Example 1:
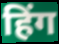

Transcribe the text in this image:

हिंग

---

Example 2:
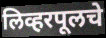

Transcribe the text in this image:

लिव्हरपूलचे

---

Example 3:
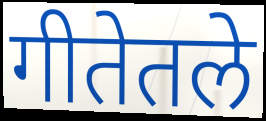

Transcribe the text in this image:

गीतेतले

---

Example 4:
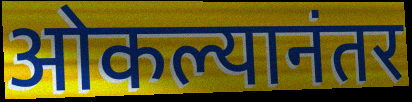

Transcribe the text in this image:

ओकल्यानंतर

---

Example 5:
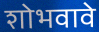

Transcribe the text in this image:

शोभवावे